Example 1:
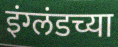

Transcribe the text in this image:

इंग्‍लंडच्या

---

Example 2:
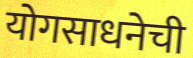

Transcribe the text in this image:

योगसाधनेची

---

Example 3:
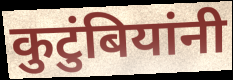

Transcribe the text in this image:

कुटुंबियांनी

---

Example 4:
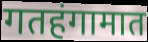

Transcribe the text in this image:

गतहंगामात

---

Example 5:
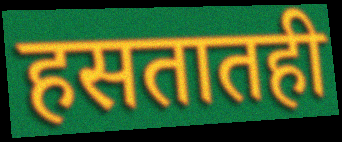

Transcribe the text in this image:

हसतातही